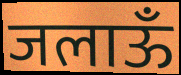
जलाऊँ